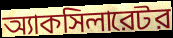
অ্যাকসিলারেটর